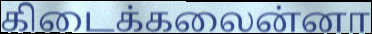
கிடைக்கலைன்னா